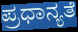
ಪ್ರಧಾನ್ಯತೆ